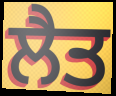
ਲੈਤ